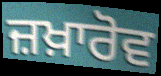
ਜ਼ਖ਼ਾਰੋਵ